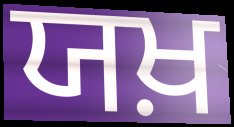
ਯਖ਼